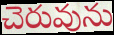
చెరువును